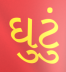
ઘુટું